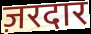
ज़रदार